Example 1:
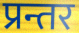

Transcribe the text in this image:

प्रन्तर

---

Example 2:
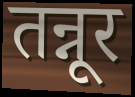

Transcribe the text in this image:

तन्नूर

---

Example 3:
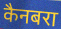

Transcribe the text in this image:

कैनबरा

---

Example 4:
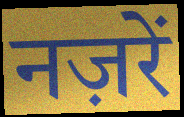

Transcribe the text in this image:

नज़रें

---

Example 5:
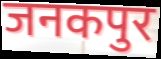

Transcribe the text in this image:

जनकपुर